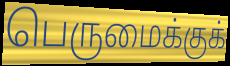
பெருமைக்குக்